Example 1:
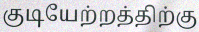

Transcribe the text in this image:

குடியேற்றத்திற்கு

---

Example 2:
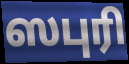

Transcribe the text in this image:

ஸபுரி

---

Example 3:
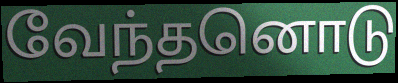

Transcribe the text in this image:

வேந்தனொடு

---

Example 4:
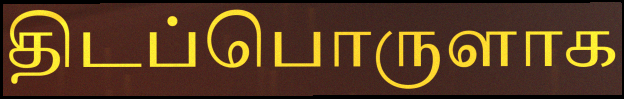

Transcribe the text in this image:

திடப்பொருளாக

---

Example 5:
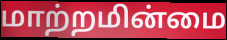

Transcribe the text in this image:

மாற்றமின்மை